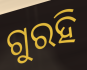
ଗୁରହି